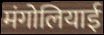
मंगोलियाई